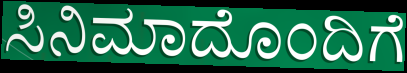
ಸಿನಿಮಾದೊಂದಿಗೆ